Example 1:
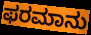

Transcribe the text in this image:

ಫರಮಾನು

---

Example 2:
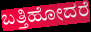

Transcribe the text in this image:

ಬತ್ತಿಹೋದರೆ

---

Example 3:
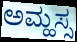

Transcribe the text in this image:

ಅಮ್ಹಸ್ಸ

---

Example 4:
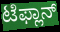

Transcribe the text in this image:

ಟೆಫ್ಲಾನ್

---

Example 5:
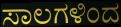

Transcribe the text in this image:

ಸಾಲಗಳಿಂದ